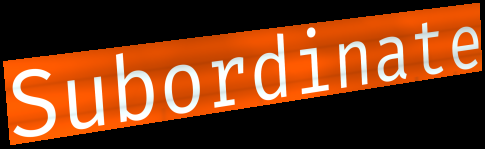
Subordinate